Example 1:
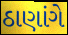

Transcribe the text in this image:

ઠાણાંગે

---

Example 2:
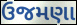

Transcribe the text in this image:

ઉજમણા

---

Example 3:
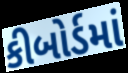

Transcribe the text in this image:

કીબોર્ડમાં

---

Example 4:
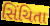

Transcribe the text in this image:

સિંચિતા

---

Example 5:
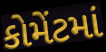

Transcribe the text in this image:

કોમેંટમાં